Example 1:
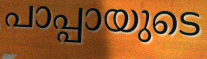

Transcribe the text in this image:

പാപ്പായുടെ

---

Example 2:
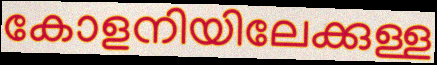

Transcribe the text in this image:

കോളനിയിലേക്കുള്ള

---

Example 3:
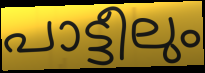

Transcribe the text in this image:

പാട്ടീലും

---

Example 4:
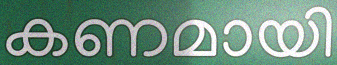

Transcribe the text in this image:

കണമായി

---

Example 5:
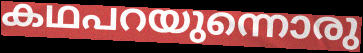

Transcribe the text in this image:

കഥപറയുന്നൊരു